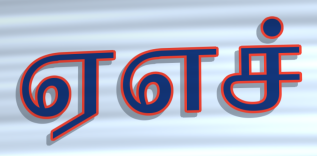
ஏஎச்